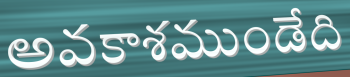
అవకాశముండేది